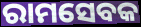
ରାମସେବକ